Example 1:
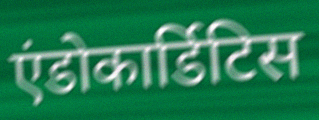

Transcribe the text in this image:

एंडोकार्डिटिस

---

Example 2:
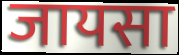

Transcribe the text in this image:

जायसा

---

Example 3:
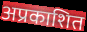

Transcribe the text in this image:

अप्रकाशित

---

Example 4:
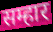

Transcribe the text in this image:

सम्हार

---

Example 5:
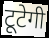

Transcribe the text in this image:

टूटेगी